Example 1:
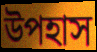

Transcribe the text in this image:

উপহাস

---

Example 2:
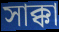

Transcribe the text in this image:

সাক্কা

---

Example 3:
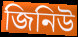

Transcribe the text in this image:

জিনিউ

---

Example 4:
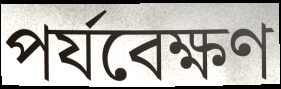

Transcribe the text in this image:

পর্যবেক্ষণ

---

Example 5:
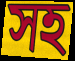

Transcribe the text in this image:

সহ